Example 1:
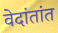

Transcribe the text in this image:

वेदांतांत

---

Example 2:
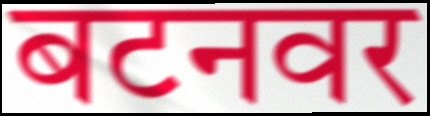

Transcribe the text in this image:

बटनवर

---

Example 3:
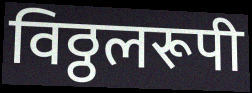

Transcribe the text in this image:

विठ्ठलरूपी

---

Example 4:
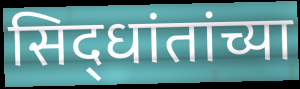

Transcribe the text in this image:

सिद्धांतांच्या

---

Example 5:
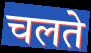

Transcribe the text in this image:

चलते